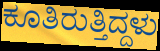
ಕೂತಿರುತ್ತಿದ್ದಳು